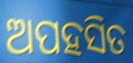
ଅପହସିତ